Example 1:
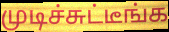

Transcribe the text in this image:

முடிச்சுட்டீங்க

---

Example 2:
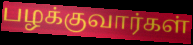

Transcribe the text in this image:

பழக்குவார்கள்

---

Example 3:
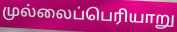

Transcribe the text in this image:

முல்லைப்பெரியாறு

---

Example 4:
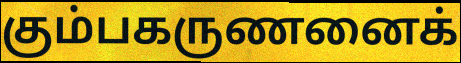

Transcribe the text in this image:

கும்பகருணனைக்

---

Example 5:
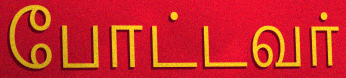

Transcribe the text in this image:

போட்டவர்